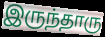
இருந்தாரு